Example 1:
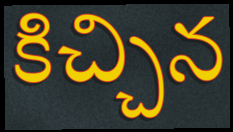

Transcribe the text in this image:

కిచ్చిన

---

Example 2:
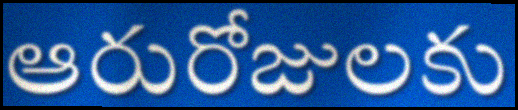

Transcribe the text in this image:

ఆరురోజులకు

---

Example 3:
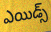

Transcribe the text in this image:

ఎయిడ్స్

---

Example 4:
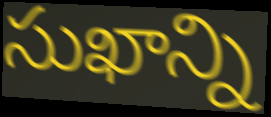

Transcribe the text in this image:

సుఖాన్ని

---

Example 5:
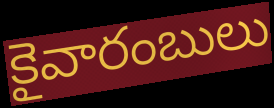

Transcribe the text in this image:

కైవారంబులు